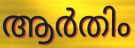
ആർതിം